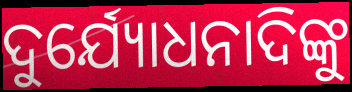
ଦୁର୍ଯ୍ୟୋଧନାଦିଙ୍କୁ